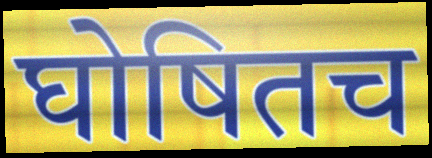
घोषितच